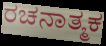
ರಚನಾತ್ಮಕ